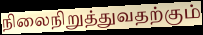
நிலைநிறுத்துவதற்கும்